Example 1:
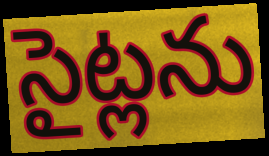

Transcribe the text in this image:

సైట్లను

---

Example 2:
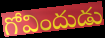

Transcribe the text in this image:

గోవిందుడు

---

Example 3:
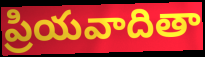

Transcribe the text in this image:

ప్రియవాదితా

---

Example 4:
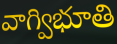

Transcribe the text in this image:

వాగ్విభూతి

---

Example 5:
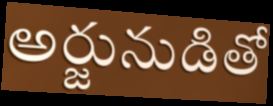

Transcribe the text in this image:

అర్జునుడితో